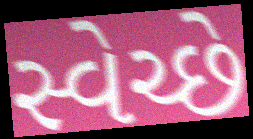
સ્વેચ્છે